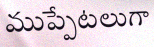
ముప్పేటలుగా